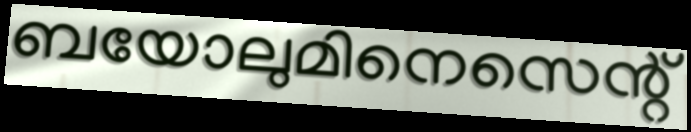
ബയോലുമിനെസെന്റ്